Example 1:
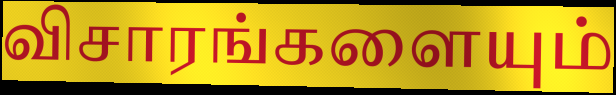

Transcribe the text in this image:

விசாரங்களையும்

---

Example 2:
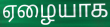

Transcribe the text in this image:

ஏழையாக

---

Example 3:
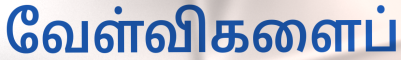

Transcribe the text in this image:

வேள்விகளைப்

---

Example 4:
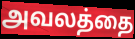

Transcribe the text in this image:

அவலத்தை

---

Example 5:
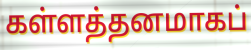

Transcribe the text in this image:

கள்ளத்தனமாகப்